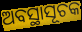
ଅବସ୍ଥାସୂଚକ